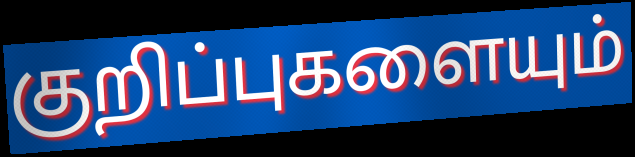
குறிப்புகளையும்